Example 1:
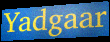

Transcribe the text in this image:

Yadgaar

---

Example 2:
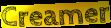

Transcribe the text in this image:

Creamer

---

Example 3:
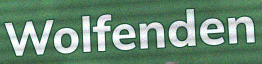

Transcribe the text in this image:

Wolfenden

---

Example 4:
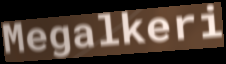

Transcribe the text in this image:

Megalkeri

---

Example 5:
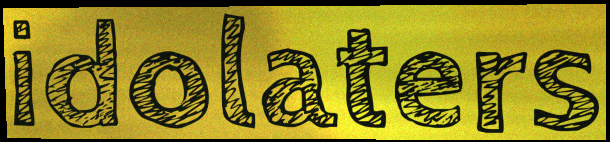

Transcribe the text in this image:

idolaters